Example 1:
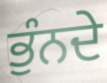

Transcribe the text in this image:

ਭੁੰਨਦੇ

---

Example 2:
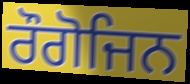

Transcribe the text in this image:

ਰੌਗੋਜਿਨ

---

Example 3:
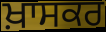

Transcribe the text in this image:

ਖ਼ਾਸਕਰ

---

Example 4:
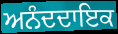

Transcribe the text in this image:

ਅਨੰਦਦਾਇਕ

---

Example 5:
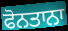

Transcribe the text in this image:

ਫੋਨਤਾਨਾ